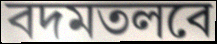
বদমতলবে